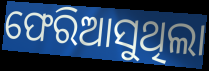
ଫେରିଆସୁଥିଲା